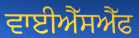
ਵਾਈਐੱਸਐੱਫ